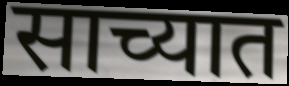
साच्यात